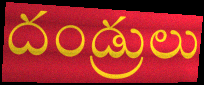
దండ్రులు